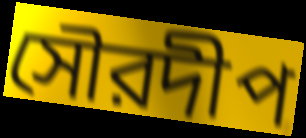
সৌরদীপ